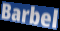
Barbel